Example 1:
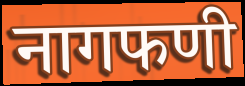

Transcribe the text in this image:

नागफणी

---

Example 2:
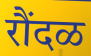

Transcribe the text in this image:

रौंदळ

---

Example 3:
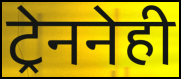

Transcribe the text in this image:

ट्रेननेही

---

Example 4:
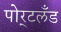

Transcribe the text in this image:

पोर्टलॅंड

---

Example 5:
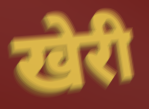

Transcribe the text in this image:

खेरी